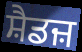
ਸ਼ੈਡਜ਼